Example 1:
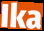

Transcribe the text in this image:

Ika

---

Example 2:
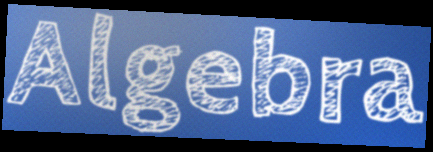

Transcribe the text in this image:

Algebra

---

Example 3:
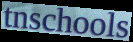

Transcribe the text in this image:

tnschools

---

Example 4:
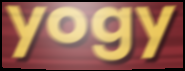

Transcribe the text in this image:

yogy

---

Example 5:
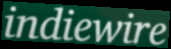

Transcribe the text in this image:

indiewire